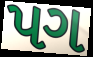
પગ